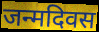
जन्मदिवस